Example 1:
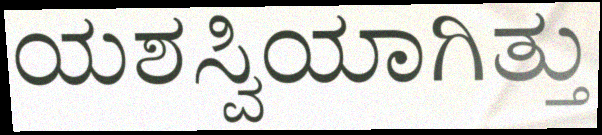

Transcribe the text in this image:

ಯಶಸ್ವಿಯಾಗಿತ್ತು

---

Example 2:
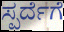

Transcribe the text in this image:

ಸ್ಪರ್ದೆಗೆ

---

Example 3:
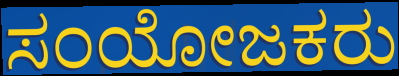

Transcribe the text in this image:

ಸಂಯೋಜಕರು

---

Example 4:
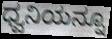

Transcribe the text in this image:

ಧ್ವನಿಯನ್ನೂ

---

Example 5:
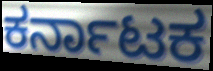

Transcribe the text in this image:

ಕರ್ನಾಟಕ